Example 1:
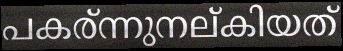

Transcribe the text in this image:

പകര്ന്നുനല്കിയത്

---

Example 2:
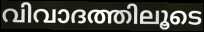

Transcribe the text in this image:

വിവാദത്തിലൂടെ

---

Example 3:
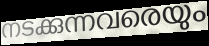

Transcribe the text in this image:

നടക്കുന്നവരെയും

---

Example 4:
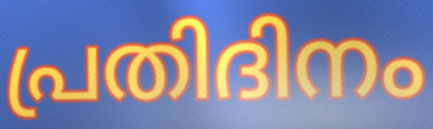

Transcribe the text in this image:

പ്രതിദിനം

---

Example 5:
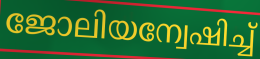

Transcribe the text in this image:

ജോലിയന്വേഷിച്ച്